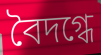
বৈদগ্ধে